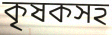
কৃষকসহ